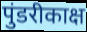
पुंडरीकाक्ष